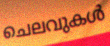
ചെലവുകൾ